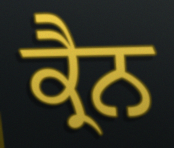
ਕ੍ਰੈਨ